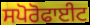
ਸਪੋਰੋਫਾਈਟ